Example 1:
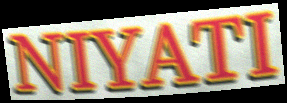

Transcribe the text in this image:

NIYATI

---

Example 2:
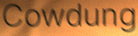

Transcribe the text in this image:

Cowdung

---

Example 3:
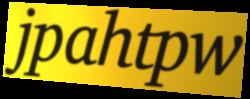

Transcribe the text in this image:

jpahtpw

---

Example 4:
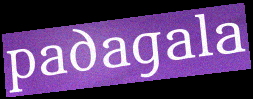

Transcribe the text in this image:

padagala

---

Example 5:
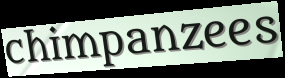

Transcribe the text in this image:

chimpanzees